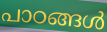
പാഠങ്ങൾ